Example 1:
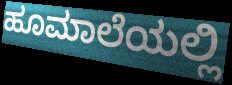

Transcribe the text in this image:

ಹೂಮಾಲೆಯಲ್ಲಿ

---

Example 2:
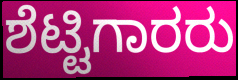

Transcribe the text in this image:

ಶೆಟ್ಟಿಗಾರರು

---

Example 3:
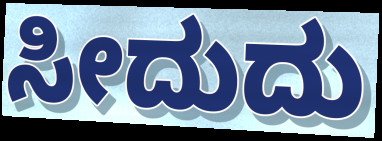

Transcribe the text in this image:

ಸೀದುದು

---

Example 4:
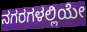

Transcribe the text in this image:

ನಗರಗಳಲ್ಲಿಯೇ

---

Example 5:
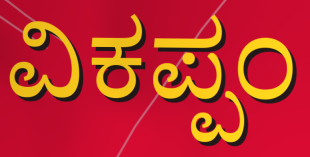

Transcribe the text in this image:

ವಿಕಪ್ಪಂ